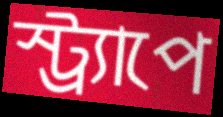
স্ট্র্যাপে